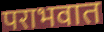
पराभवात